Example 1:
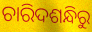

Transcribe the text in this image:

ଚାରିଦଶନ୍ଧିରୁ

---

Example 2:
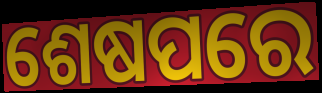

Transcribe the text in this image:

ଶେଷପରେ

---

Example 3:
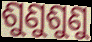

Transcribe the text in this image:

ଶୁଣୁଶୁଣୁ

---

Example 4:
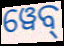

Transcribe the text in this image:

ୱେବ୍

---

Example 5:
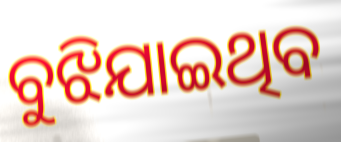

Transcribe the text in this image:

ବୁଝିଯାଇଥିବ